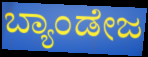
ಬ್ಯಾಂಡೇಜ